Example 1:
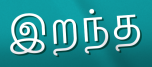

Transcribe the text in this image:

இறந்த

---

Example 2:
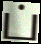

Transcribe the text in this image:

ப்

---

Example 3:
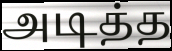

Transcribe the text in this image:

அடித்த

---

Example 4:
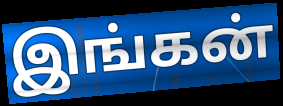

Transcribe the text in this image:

இங்கன்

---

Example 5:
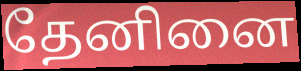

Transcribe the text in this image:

தேனினை